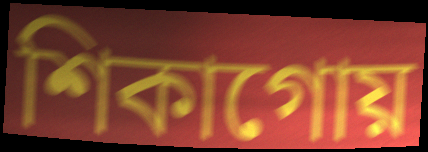
শিকাগোয়